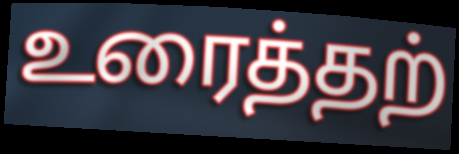
உரைத்தற்